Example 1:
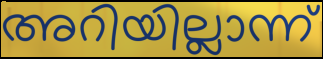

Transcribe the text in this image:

അറിയില്ലാന്ന്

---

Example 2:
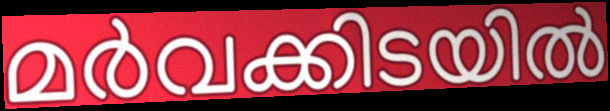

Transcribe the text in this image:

മർവക്കിടയിൽ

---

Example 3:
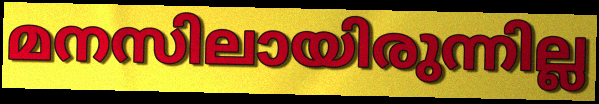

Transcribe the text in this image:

മനസിലായിരുന്നില്ല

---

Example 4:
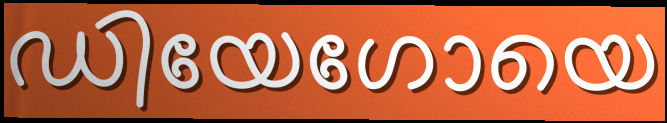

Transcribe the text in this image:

ഡിയേഗോയെ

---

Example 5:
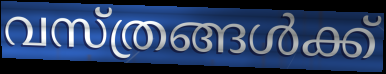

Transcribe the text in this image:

വസ്ത്രങ്ങൾക്ക്